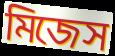
মিজেস